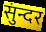
सुंन्दर